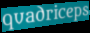
quadriceps